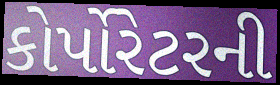
કોર્પોરેટરની